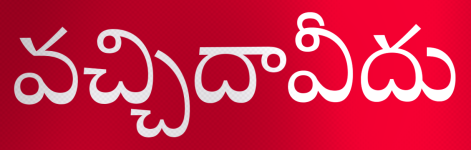
వచ్చిదావీదు